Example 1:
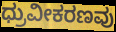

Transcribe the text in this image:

ಧ್ರುವೀಕರಣವು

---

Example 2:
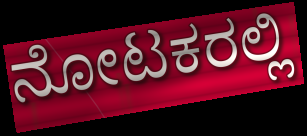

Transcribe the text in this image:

ನೋಟಕರಲ್ಲಿ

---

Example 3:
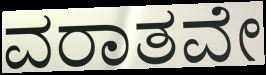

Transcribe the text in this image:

ವರಾತವೇ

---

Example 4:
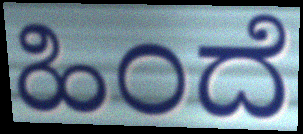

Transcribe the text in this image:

ಹಿಂದೆ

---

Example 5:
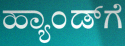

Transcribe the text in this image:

ಹ್ಯಾಂಡ್‌ಗೆ